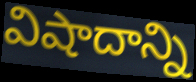
విషాదాన్ని